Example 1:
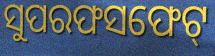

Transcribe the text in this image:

ସୁପରଫସଫେଟ୍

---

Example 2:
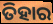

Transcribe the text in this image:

ତିହାର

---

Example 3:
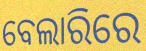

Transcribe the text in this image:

ବେଲାରିରେ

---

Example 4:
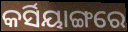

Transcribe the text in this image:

କର୍ସିୟାଙ୍ଗରେ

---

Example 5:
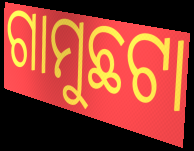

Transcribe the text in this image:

ଗାମୁଛଟା